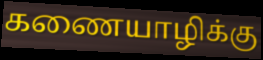
கணையாழிக்கு